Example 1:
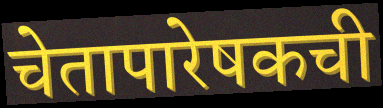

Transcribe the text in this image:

चेतापारेषकची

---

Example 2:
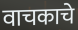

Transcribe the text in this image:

वाचकाचे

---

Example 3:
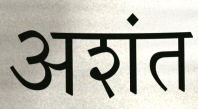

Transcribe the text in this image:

अशंत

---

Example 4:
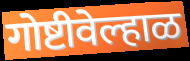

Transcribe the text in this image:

गोष्टीवेल्हाळ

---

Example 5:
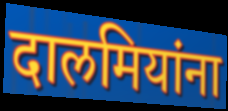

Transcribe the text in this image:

दालमियांना